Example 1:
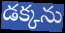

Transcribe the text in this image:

డక్కను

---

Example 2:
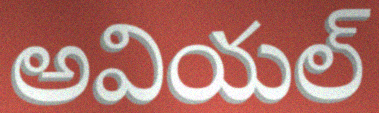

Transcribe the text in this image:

అవియల్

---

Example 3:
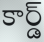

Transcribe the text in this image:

కార్డ్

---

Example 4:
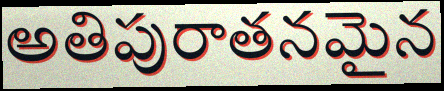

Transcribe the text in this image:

అతిపురాతనమైన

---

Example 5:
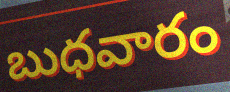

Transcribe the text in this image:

బుధవారం